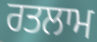
ਰਤਲਾਮ